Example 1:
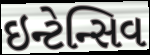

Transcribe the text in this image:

ઇન્ટેન્સિવ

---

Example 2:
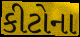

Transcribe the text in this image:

કીટોના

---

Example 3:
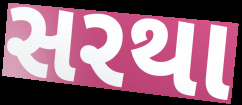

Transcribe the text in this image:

સરથા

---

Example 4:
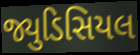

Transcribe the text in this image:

જ્યુડિસિયલ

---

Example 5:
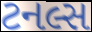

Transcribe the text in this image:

ટનલ્સ